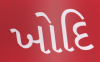
ખોદિ